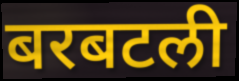
बरबटली